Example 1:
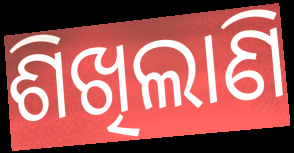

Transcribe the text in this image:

ଶିଖିଲାଣି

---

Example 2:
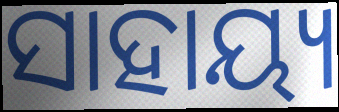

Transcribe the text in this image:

ସାହାୟ୍ୟ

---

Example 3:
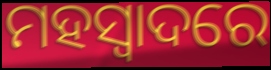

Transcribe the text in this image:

ମହସ୍ୱାଦରେ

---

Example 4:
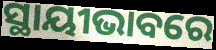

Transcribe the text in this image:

ସ୍ଥାୟୀଭାବରେ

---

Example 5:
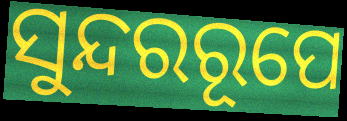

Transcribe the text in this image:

ସୁନ୍ଦରରୂପେ